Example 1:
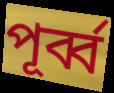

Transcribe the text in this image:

পূৰ্ব্ব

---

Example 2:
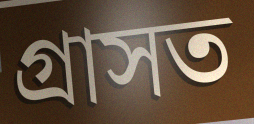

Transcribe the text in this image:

গ্ৰাসত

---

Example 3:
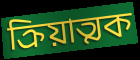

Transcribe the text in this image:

ক্ৰিয়াত্মক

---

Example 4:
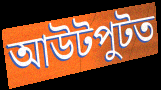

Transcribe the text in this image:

আউটপুটত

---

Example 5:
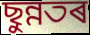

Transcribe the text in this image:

ছুন্নতৰ